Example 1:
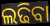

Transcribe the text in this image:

ଲଢିବା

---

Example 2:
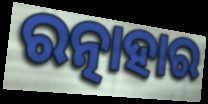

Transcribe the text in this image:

ରତ୍ନାହାର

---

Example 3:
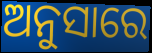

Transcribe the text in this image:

ଅନୁସାରେ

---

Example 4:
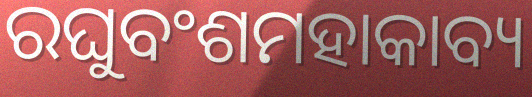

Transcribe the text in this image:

ରଘୁବଂଶମହାକାବ୍ୟ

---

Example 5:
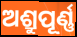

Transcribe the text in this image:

ଅଶ୍ରୁପୂର୍ଣ୍ଣ